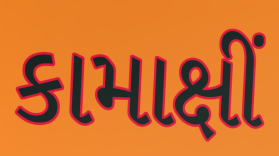
કામાક્ષીં